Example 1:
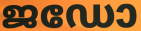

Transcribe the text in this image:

ജഡോ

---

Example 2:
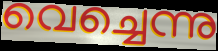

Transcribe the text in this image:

വെച്ചെന്നു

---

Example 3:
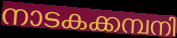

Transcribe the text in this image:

നാടകക്കമ്പനി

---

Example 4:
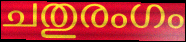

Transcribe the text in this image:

ചതുരംഗം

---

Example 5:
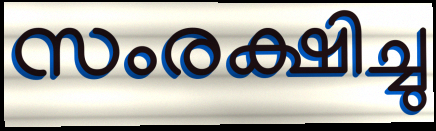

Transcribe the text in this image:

സംരക്ഷിച്ചു